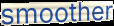
smoother